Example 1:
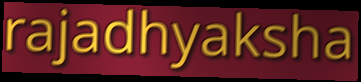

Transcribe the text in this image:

rajadhyaksha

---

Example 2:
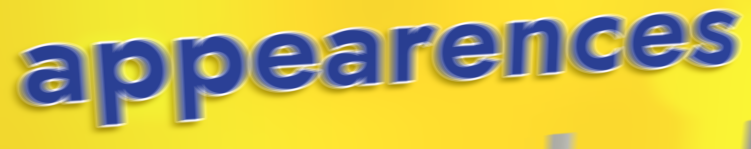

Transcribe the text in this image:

appearences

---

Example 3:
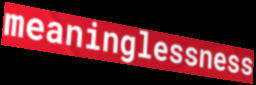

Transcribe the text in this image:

meaninglessness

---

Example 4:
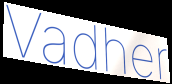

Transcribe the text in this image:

Vadher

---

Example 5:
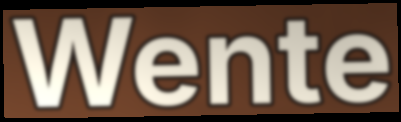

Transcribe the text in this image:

Wente